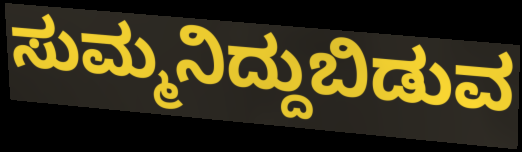
ಸುಮ್ಮನಿದ್ದುಬಿಡುವ